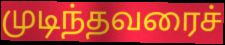
முடிந்தவரைச்